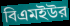
বিএমইউর